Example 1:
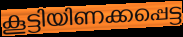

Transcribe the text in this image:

കൂട്ടിയിണക്കപ്പെട്ട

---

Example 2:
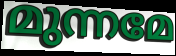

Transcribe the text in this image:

മുന്നമേ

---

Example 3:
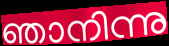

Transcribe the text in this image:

ഞാനിന്നു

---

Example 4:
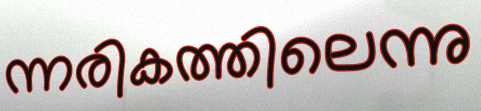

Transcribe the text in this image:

ന്നരികത്തിലെന്നു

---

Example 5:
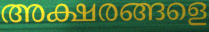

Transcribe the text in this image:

അക്ഷരങ്ങളെ